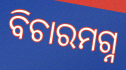
ବିଚାରମଗ୍ନ